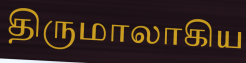
திருமாலாகிய